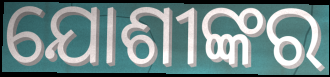
ଯୋଶୀଙ୍କର